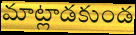
మాట్లాడకుండ